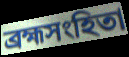
ব্রহ্মসংহিতা